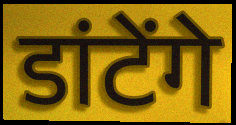
डांटेंगे